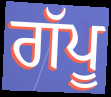
ਗੱਪੂ